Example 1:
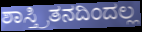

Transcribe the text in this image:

ಶಾಸ್ತ್ರಿತನದಿಂದಲ್ಲ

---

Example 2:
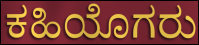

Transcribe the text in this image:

ಕಹಿಯೊಗರು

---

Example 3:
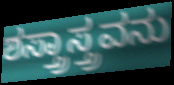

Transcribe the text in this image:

ಶಸ್ತ್ರಾಸ್ತ್ರವನು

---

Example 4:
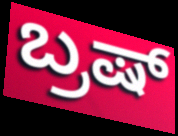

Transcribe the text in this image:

ಬ್ರಷ್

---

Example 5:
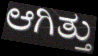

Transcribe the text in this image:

ಆಗಿತ್ತು